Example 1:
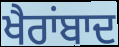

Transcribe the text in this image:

ਖੈਰਾਂਬਾਦ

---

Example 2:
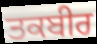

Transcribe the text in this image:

ਤਕਬੀਰ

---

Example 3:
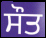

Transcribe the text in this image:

ਸੌਤ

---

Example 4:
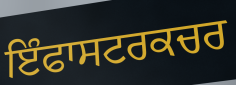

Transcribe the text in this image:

ਇੰਫਾਸਟਰਕਚਰ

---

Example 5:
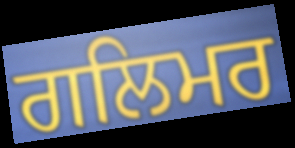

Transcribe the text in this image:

ਗਲਿਮਰ